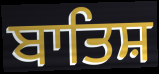
ਬਾਤਿਸ਼